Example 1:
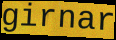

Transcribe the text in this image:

girnar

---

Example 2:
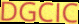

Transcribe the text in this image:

DGCIC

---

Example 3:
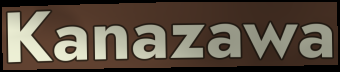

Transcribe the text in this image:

Kanazawa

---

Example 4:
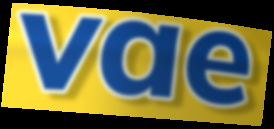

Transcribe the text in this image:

vae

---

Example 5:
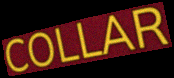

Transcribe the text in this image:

COLLAR